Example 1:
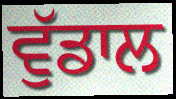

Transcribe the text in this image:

ਵੁੱਡਾਲ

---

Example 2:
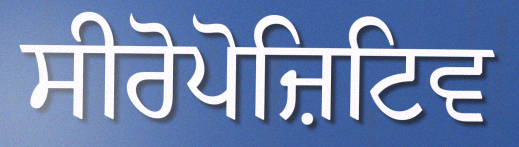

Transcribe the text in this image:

ਸੀਰੋਪੋਜ਼ਿਟਿਵ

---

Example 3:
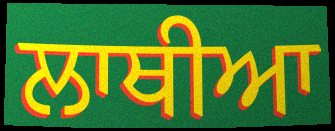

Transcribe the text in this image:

ਲਾਥੀਆ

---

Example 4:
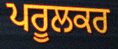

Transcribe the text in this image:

ਪਰੂਲਕਰ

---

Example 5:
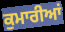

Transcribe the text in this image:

ਕੁਮਾਰੀਆਂ